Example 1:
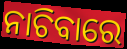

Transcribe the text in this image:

ନାଚିବାରେ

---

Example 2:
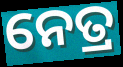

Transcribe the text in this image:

ନେତ୍ର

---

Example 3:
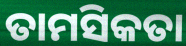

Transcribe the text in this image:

ତାମସିକତା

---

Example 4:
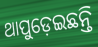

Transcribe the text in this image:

ଥାପୁଡ଼େଇଛନ୍ତି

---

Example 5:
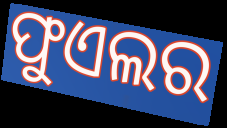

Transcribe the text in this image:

ଫୁଏଲର